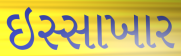
ઇસ્સાખાર